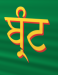
ਬ੍ਰੰਟ